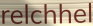
relchhel